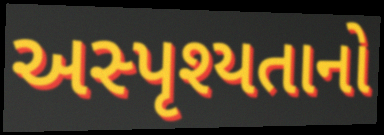
અસ્પૃશ્યતાનો